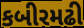
કબીરમઢી